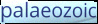
palaeozoic